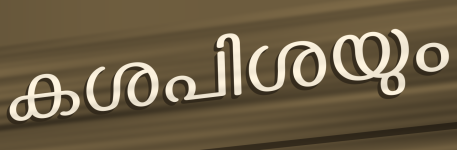
കശപിശയും